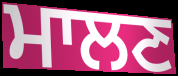
ਮਾਲਣ